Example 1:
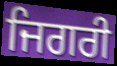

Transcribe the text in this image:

ਜਿਗਰੀ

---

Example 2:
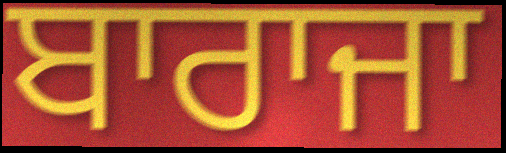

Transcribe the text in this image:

ਬਾਰਾਜਾ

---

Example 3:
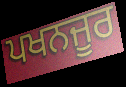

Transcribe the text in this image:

ਪਖਨਜੂਰ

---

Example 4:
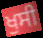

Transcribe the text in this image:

ਖੁਸੀ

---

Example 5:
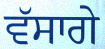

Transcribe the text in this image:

ਵੱਸਾਗੇ